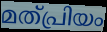
മത്പ്രിയം